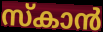
സ്കാൻ